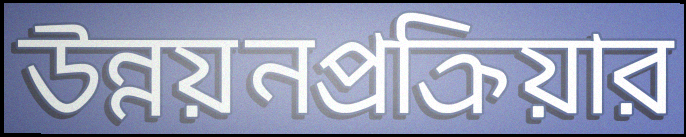
উন্নয়নপ্রক্রিয়ার